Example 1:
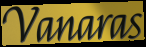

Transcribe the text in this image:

Vanaras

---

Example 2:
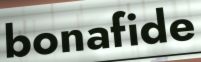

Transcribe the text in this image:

bonafide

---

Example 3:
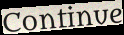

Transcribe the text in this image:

Continue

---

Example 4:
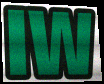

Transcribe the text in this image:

IW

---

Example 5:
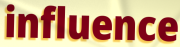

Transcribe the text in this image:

influence